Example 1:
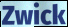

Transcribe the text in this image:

Zwick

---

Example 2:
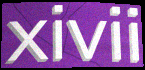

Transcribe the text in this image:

xivii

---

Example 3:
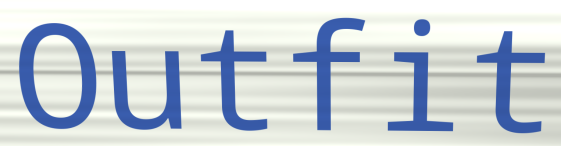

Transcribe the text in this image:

Outfit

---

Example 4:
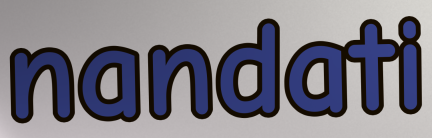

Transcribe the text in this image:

nandati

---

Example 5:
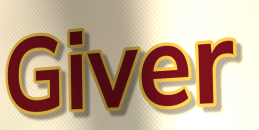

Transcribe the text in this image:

Giver